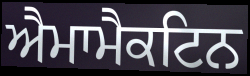
ਐਮਾਮੈਕਟਿਨ